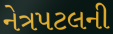
નેત્રપટલની